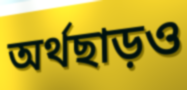
অর্থছাড়ও